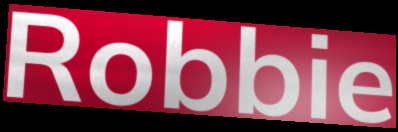
Robbie